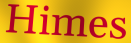
Himes